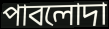
পাবলোদা